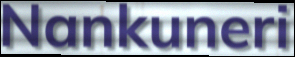
Nankuneri